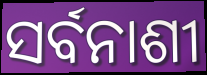
ସର୍ବନାଶୀ